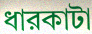
ধারকাটা